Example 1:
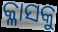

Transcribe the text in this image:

କ୍ଳାସକୁ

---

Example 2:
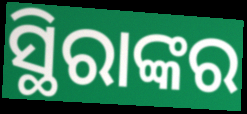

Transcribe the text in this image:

ସ୍ଥିରାଙ୍କର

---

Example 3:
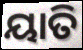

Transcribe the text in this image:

ୟାତି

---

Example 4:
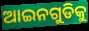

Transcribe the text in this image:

ଆଇନଗୁଡିକୁ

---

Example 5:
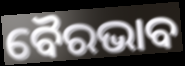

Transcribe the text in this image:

ବୈରଭାବ